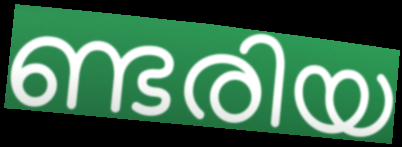
ണ്ടരിയ